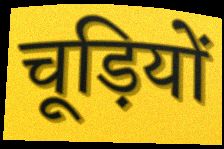
चूड़ियों